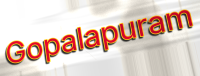
Gopalapuram